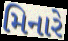
મિનારે